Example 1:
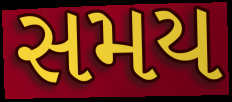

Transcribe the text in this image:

સમય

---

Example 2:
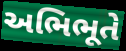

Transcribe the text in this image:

અભિભૂતે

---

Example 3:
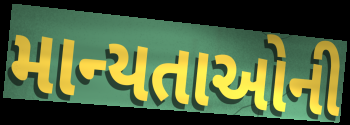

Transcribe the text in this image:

માન્યતાઓની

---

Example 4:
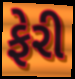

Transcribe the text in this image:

ફેરી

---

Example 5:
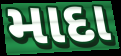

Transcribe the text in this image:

માદા